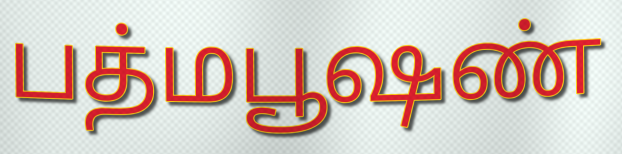
பத்மபூஷண்